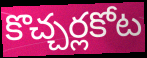
కొచ్చర్లకోట